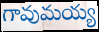
గావుమయ్య